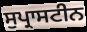
ਸੁਪ੍ਰਾਸਟੀਨ